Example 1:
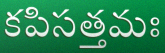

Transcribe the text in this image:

కపిసత్తమః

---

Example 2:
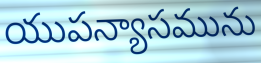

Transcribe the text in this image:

యుపన్యాసమును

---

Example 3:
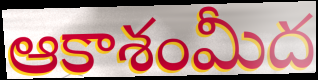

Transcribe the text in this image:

ఆకాశంమీద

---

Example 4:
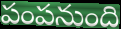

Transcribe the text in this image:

పంపనుంది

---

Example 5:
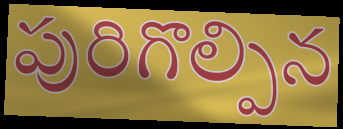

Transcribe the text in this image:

పురిగొల్పిన